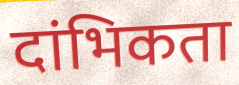
दांभिकता